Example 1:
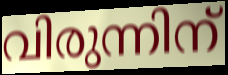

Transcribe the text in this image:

വിരുന്നിന്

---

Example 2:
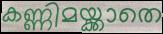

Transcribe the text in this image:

കണ്ണിമയ്ക്കാതെ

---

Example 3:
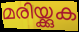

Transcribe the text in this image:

മരിയ്ക്കുക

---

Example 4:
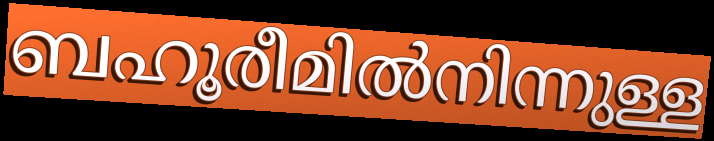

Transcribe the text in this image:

ബഹൂരീമിൽനിന്നുള്ള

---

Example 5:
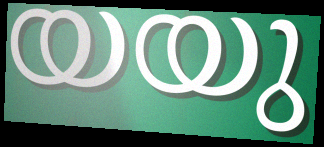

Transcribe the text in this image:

യയു